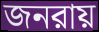
জনরায়